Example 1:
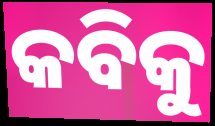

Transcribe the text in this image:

କବିକୁ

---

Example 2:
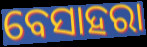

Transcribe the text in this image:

ବେସାହରା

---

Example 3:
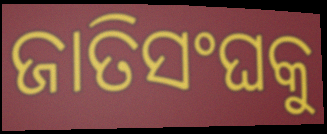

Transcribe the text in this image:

ଜାତିସଂଘକୁ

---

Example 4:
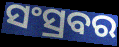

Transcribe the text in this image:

ସଂସ୍ରବର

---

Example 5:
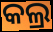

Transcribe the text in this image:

କଲ୍ର